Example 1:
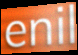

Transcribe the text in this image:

enil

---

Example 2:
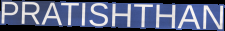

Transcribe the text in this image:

PRATISHTHAN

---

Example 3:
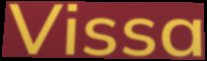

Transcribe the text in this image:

Vissa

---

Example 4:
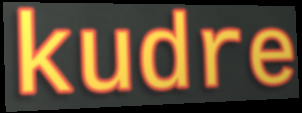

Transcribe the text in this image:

kudre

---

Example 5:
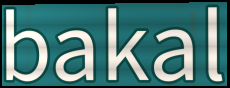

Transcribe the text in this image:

bakal